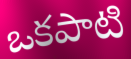
ఒకపాటి